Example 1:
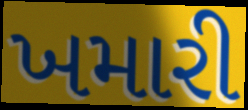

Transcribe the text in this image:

ખમારી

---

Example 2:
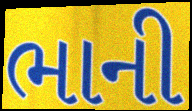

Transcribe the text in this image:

ભાની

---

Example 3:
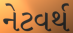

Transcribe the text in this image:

નેટવર્થ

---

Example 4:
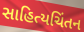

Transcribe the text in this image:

સાહિત્યચિંતન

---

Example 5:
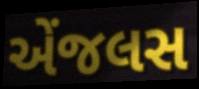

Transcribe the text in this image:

એંજલસ